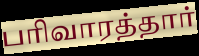
பரிவாரத்தார்